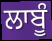
ਲਾਬੂੰ